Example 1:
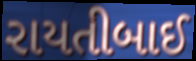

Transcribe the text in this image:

રાયતીબાઈ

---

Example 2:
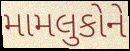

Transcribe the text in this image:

મામલુકોને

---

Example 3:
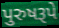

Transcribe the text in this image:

પુરુષરૂપે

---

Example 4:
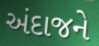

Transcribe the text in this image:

અંદાજને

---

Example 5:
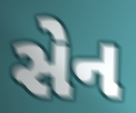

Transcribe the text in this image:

સેન